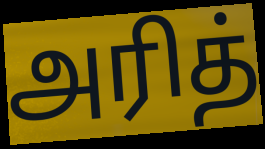
அரித்